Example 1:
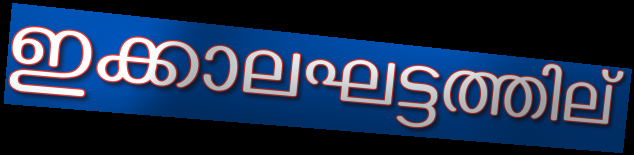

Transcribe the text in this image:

ഇക്കാലഘട്ടത്തില്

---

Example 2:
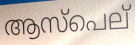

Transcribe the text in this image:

ആസ്പെല്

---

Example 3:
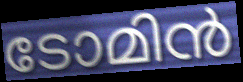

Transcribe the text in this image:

ടോമിൻ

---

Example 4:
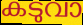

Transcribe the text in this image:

കടുവാ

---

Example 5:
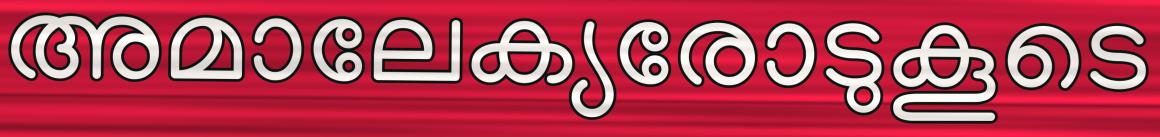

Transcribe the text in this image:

അമാലേക്യരോടുകൂടെ